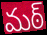
మఠ్